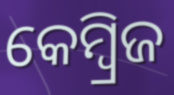
କେମ୍ବ୍ରିଜ